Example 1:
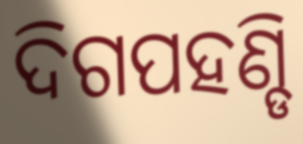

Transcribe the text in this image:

ଦିଗପହଣ୍ଡି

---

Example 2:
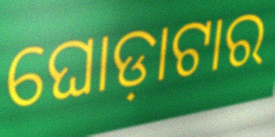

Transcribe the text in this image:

ଘୋଡ଼ାଟାର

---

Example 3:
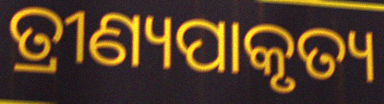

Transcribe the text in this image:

ତ୍ରୀଣ୍ୟପାକୃତ୍ୟ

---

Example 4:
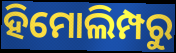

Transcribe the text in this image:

ହିମୋଲିମ୍ପରୁ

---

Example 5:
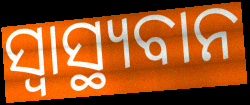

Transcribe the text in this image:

ସ୍ୱାସ୍ଥ୍ୟବାନ